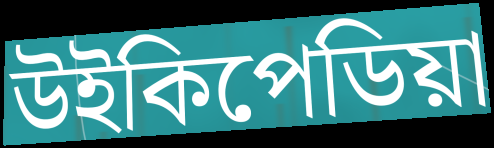
উইকিপেডিয়া